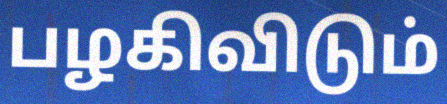
பழகிவிடும்